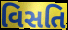
વિસતિ